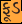
ફૂડ